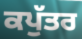
ਕਪੁੱਤਰ